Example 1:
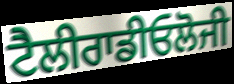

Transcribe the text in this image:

ਟੈਲੀਰਾਡੀਓਲੋਜੀ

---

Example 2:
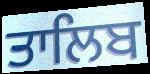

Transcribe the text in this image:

ਤਾਲਿਬ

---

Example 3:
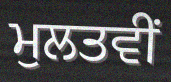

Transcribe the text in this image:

ਮੁਲਤਵੀਂ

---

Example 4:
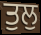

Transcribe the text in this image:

ਤੁਲੁ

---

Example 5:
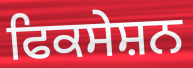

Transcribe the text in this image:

ਫਿਕਸੇਸ਼ਨ